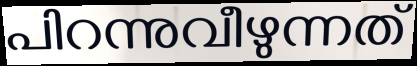
പിറന്നുവീഴുന്നത്